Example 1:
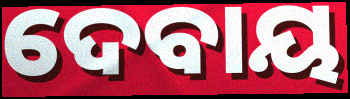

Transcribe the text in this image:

ଦେବାୟ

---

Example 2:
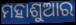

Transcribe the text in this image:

ମହାଶୁଆର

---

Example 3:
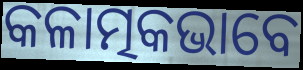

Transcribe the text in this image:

କଳାତ୍ମକଭାବେ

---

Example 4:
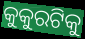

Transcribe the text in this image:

କୁକୁରଟିକୁ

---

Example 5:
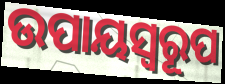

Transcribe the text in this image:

ଉପାୟସ୍ୱରୂପ